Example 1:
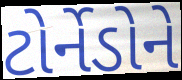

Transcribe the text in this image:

ટોર્નેડોને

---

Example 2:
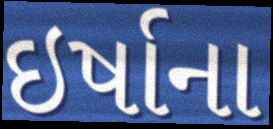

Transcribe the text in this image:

ઇર્ષાના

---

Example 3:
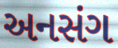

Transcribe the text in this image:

અનસંગ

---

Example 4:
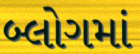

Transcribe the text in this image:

બ્લોગમાં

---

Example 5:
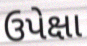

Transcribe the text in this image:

ઉપેક્ષા